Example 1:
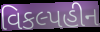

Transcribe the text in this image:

વિકલ્પહીન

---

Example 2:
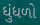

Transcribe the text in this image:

ધુંધળો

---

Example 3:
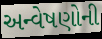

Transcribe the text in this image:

અન્વેષણોની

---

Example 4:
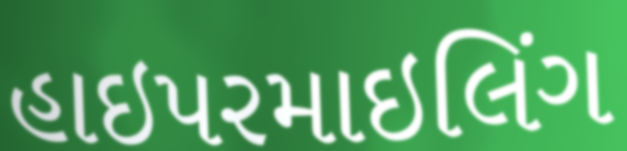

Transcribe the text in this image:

હાઇપરમાઇલિંગ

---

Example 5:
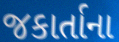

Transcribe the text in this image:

જકાર્તાના